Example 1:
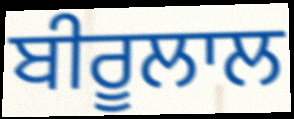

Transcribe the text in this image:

ਬੀਰੂਲਾਲ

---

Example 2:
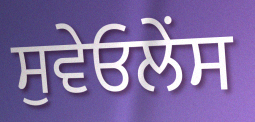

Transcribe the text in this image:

ਸੁਵੇਓਲੇਂਸ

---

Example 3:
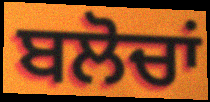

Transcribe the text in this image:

ਬਲੋਚਾਂ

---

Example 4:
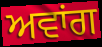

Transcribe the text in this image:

ਅਵਾਂਗ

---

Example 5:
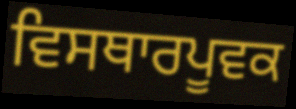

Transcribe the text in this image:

ਵਿਸਥਾਰਪੂਵਕ